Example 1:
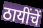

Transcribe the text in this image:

ठायींचें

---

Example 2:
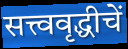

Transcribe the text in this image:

सत्त्ववृद्धीचें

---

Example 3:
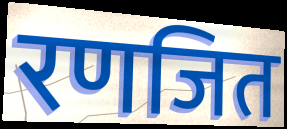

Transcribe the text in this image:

रणजित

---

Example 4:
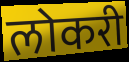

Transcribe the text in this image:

लोकरी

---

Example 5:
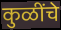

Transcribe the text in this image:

कुळींचे